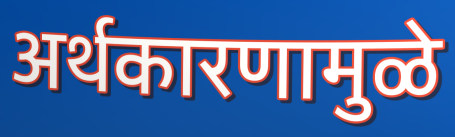
अर्थकारणामुळे